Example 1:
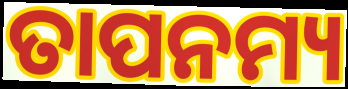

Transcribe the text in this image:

ତାପନମ୍ୟ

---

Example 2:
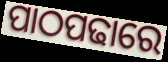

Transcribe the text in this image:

ପାଠପଢାରେ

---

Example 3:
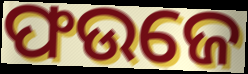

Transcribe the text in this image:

ଫଉଜେ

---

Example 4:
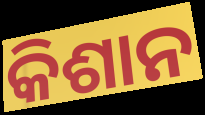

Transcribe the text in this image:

କିଶାନ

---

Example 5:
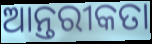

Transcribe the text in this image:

ଆନ୍ତରୀକତା